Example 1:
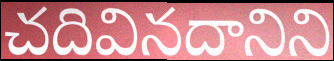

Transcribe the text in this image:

చదివినదానిని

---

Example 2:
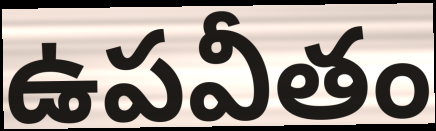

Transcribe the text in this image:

ఉపవీతం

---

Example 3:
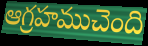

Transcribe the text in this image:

ఆగ్రహముచెంది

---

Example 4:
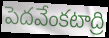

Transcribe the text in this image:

పెదవేంకటాద్రి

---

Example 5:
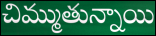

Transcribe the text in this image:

చిమ్ముతున్నాయి